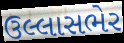
ઉલ્લાસભેર